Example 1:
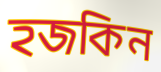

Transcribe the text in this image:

হজকিন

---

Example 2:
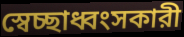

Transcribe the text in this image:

স্বেচ্ছাধ্বংসকারী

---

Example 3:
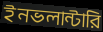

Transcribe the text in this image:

ইনভলান্টারি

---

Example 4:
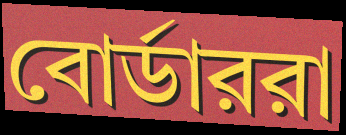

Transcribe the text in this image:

বোর্ডাররা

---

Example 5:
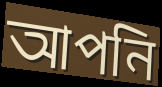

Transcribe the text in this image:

আপনি